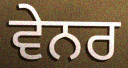
ਵੇਨਰ